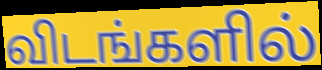
விடங்களில்